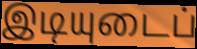
இடியுடைப்